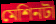
মেশিনটা